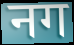
नग